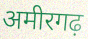
अमीरगढ़